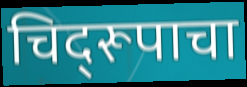
चिद्‌रूपाचा